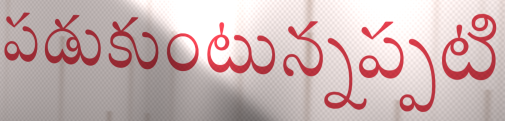
పడుకుంటున్నప్పటి